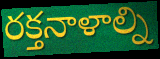
రక్తనాళాల్ని